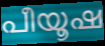
പീയൂഷ